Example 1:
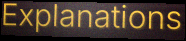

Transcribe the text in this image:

Explanations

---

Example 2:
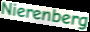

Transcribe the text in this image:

Nierenberg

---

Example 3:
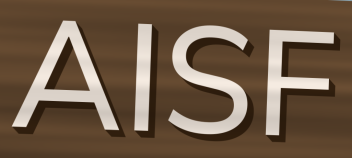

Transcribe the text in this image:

AISF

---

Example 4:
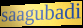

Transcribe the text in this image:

saagubadi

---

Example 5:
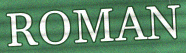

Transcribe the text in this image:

ROMAN